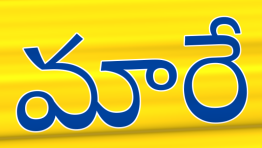
మారే